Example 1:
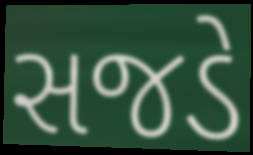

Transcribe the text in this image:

સજડે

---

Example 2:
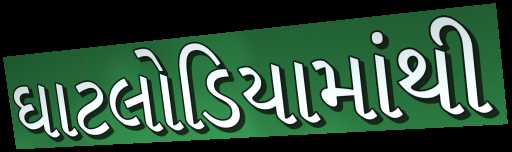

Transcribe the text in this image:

ઘાટલોડિયામાંથી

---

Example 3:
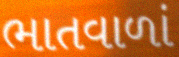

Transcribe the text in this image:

ભાતવાળાં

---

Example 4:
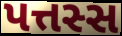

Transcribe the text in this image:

પત્તસ્સ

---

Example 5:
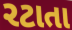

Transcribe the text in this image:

રટાતા